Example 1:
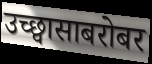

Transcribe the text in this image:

उच्छ्वासाबरोबर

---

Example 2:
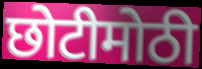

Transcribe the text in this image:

छोटीमोठी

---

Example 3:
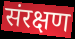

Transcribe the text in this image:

संरक्षण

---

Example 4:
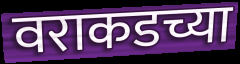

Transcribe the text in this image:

वराकडच्या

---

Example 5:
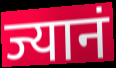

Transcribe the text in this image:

ज्यानं